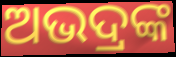
ଅଭଦ୍ରଙ୍କ